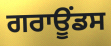
ਗਰਾਊਂਡਸ